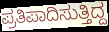
ಪ್ರತಿಪಾದಿಸುತ್ತಿದ್ದ